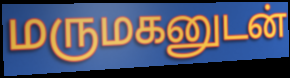
மருமகனுடன்